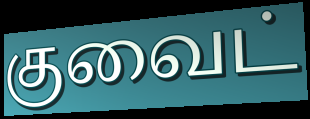
குவைட்